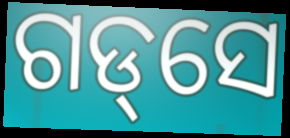
ଗଡ୍‌ସେ